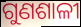
ଗୁଣଶାଳୀ